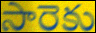
సారెకు